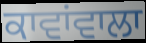
ਕਾਵਾਂਵਾਲਾ